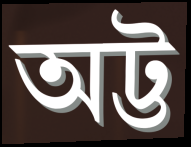
অট্ট